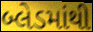
બ્લેડમાંથી